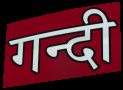
गन्दी